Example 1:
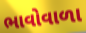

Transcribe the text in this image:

ભાવોવાળા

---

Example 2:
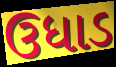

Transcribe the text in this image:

ઉધાડ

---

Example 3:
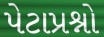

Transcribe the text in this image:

પેટાપ્રશ્નો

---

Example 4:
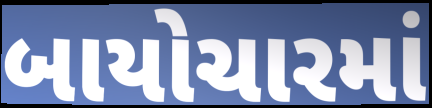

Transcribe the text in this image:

બાયોચારમાં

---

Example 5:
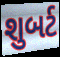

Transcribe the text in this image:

શુબર્ટ